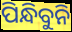
ପିନ୍ଧିବୁନି